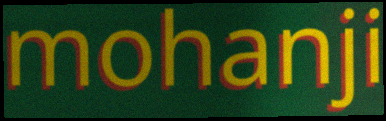
mohanji